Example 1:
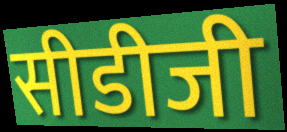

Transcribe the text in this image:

सीडीजी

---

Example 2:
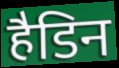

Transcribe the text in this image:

हैडिन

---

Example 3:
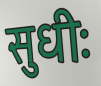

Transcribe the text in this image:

सुधीः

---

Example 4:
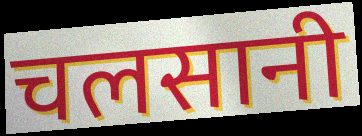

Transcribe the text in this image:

चलसानी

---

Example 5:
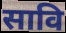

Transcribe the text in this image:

सावि